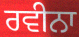
ਰਵੀਨਾ